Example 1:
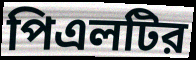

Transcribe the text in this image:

পিএলটির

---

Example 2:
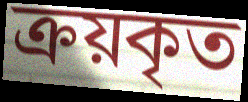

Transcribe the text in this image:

ক্রয়কৃত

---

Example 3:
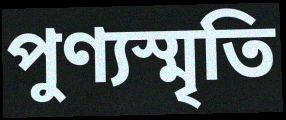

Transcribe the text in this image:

পুণ্যস্মৃতি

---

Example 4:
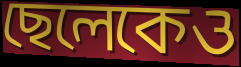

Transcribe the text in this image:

ছেলেকেও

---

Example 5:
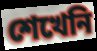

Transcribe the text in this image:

শেখেনি